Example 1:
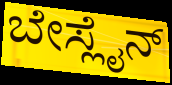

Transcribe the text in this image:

ಬೇಸ್ಲೈನ್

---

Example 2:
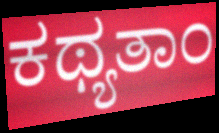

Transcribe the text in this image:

ಕಥ್ಯತಾಂ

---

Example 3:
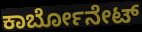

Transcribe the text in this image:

ಕಾರ್ಬೋನೇಟ್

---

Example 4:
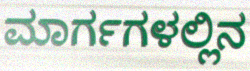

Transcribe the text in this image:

ಮಾರ್ಗಗಳಲ್ಲಿನ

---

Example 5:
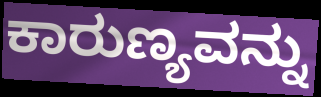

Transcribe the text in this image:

ಕಾರುಣ್ಯವನ್ನು